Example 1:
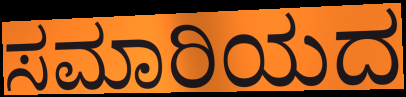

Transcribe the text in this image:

ಸಮಾರಿಯದ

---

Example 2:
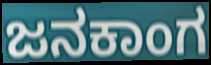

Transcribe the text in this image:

ಜನಕಾಂಗ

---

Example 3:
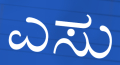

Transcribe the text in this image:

ಎಸು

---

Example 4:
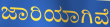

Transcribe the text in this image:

ಜಾರಿಯಾಗಿವೆ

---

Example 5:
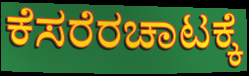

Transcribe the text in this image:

ಕೆಸರೆರಚಾಟಕ್ಕೆ